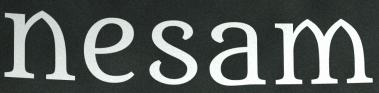
nesam